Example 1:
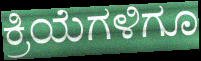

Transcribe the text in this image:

ಕ್ರಿಯೆಗಳಿಗೂ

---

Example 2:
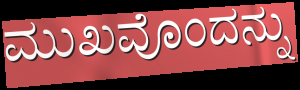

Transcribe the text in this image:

ಮುಖವೊಂದನ್ನು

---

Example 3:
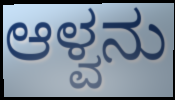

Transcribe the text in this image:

ಆಳ್ವನು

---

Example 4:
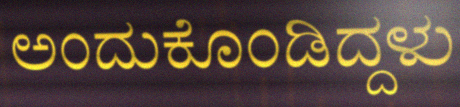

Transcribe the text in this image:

ಅಂದುಕೊಂಡಿದ್ದಳು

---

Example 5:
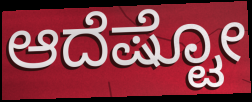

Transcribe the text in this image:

ಆದೆಷ್ಟೋ